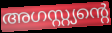
അഗസ്റ്റ്യന്റെ